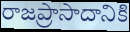
రాజప్రాసాదానికి